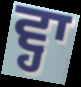
ਵ੍ਹਾ